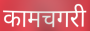
कामचगरी